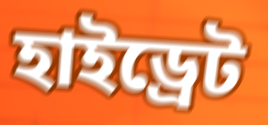
হাইড্রেট